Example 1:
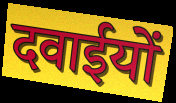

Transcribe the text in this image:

दवाईयों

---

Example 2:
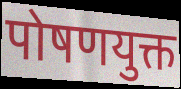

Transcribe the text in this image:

पोषणयुक्त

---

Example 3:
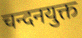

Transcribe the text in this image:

चन्दनयुक्त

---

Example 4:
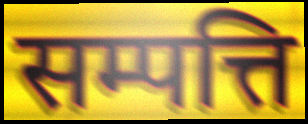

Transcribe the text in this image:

सम्पत्ति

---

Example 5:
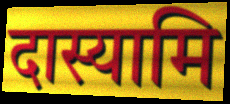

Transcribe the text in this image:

दास्यामि